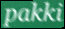
pakki